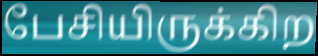
பேசியிருக்கிற